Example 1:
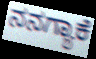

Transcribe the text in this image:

ನನಗ್ಯಾಕೆ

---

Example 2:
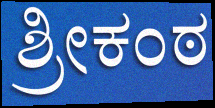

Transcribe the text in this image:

ಶ್ರೀಕಂಠ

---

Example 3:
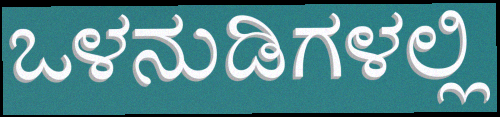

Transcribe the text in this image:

ಒಳನುಡಿಗಳಲ್ಲಿ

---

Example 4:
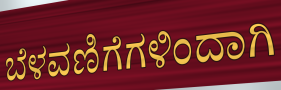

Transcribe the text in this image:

ಬೆಳವಣಿಗೆಗಳಿಂದಾಗಿ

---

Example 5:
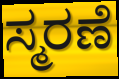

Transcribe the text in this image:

ಸ್ಮರಣೆ